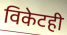
विकेटही